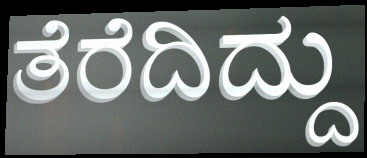
ತೆರೆದಿದ್ದು